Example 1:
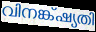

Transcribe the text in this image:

വിനങ്ക്ഷ്യതി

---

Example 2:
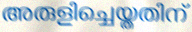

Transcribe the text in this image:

അരുളിച്ചെയ്തതിന്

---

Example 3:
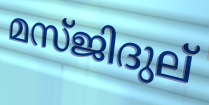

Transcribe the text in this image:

മസ്ജിദുല്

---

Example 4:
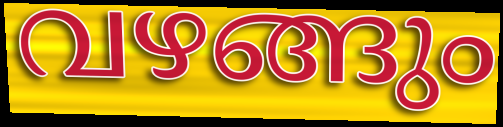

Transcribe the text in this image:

വഴങ്ങും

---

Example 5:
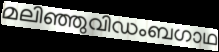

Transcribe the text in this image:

മലിഞ്ഞുവിഡംബഗാഥ